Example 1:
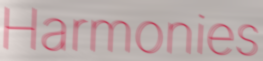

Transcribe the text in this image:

Harmonies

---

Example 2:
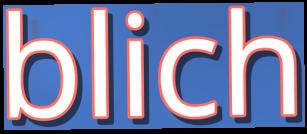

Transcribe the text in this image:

blich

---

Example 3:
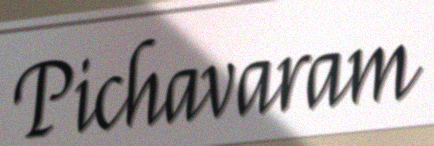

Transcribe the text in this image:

Pichavaram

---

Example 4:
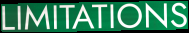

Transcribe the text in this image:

LIMITATIONS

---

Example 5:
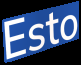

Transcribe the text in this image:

Esto